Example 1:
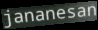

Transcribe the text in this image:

jananesan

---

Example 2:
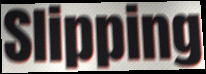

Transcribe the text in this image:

Slipping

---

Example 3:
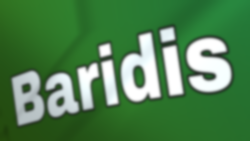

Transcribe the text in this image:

Baridis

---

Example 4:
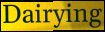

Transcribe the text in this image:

Dairying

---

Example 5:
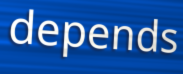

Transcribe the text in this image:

depends